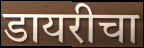
डायरीचा